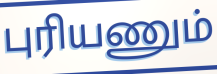
புரியணும்